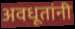
अवधूतांनी